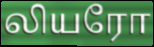
லியரோ